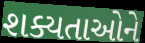
શક્યતાઓને